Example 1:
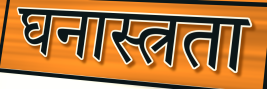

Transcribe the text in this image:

घनास्त्रता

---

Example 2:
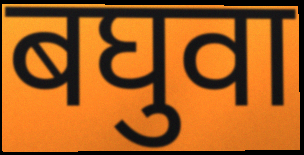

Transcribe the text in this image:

बघुवा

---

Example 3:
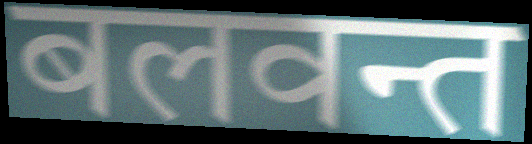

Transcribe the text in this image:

बलवन्‍त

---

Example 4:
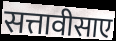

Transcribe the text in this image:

सत्तावीसाए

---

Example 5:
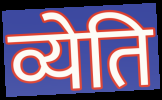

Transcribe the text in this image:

व्येति